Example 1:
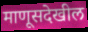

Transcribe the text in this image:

माणूसदेखील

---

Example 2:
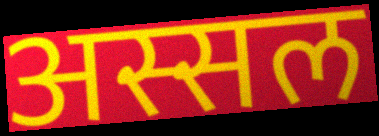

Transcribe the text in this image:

अस्सल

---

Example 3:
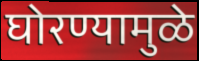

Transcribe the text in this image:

घोरण्यामुळे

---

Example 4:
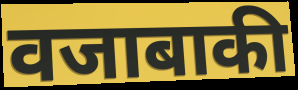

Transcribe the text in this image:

वजाबाकी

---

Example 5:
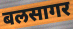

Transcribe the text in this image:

बलसागर